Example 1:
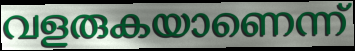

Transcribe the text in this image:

വളരുകയാണെന്ന്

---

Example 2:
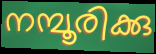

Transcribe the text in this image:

നമ്പൂരിക്കു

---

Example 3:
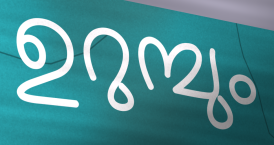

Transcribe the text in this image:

ഉറുമ്പും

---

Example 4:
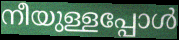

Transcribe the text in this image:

നീയുള്ളപ്പോൾ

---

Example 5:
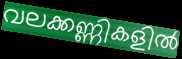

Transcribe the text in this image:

വലക്കണ്ണികളിൽ